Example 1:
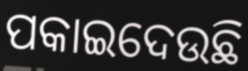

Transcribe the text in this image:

ପକାଇଦେଉଛି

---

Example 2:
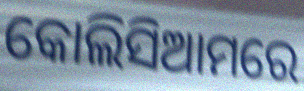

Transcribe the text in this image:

କୋଲିସିଆମରେ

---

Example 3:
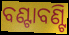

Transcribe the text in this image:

ବଣ୍ଟାବଣ୍ଟି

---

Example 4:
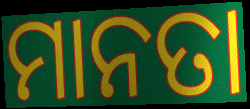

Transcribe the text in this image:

ମାନତା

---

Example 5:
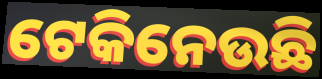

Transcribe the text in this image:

ଟେକିନେଉଛି